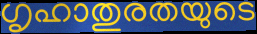
ഗൃഹാതുരതയുടെ